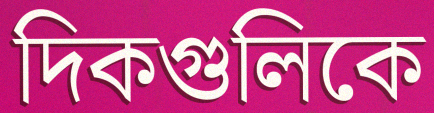
দিকগুলিকে